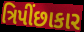
ત્રિપીંછાકાર